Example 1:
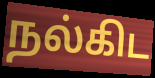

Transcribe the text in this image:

நல்கிட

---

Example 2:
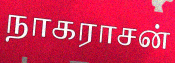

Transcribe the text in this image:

நாகராசன்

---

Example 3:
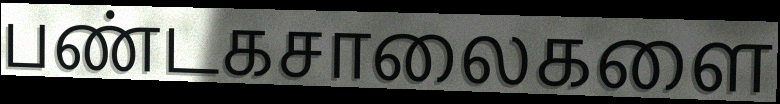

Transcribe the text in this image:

பண்டகசாலைகளை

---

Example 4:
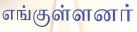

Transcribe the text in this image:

எங்குள்ளனர்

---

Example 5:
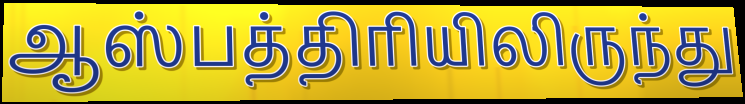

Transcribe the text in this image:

ஆஸ்பத்திரியிலிருந்து